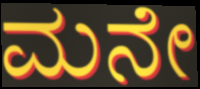
ಮನೇ